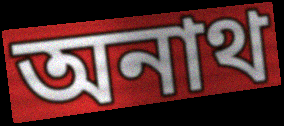
অনাথ